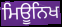
ਮਿਊਨਿਖ